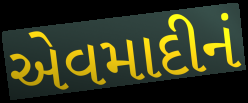
એવમાદીનં